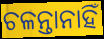
ଚଳନ୍ତାନାହିଁ